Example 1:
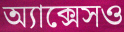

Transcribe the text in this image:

অ্যাক্সেসও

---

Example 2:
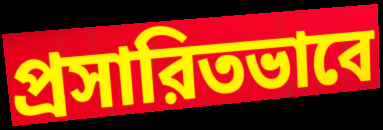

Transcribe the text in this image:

প্রসারিতভাবে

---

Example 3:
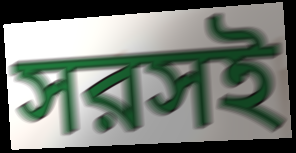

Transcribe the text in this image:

সরসই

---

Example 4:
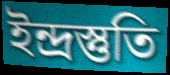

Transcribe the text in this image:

ইন্দ্রস্তুতি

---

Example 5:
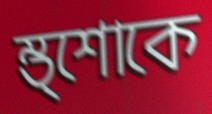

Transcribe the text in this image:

ম্ত্শোকে